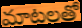
మాటలతో